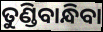
ତୁଣ୍ଡିବାନ୍ଧିବା